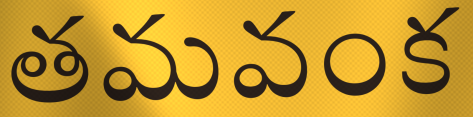
తమవంక